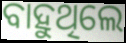
ବାହୁଥିଲେ